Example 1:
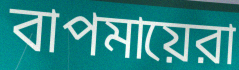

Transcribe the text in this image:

বাপমায়েরা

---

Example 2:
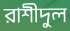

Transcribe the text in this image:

রাশীদুল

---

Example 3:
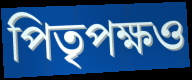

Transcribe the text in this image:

পিতৃপক্ষও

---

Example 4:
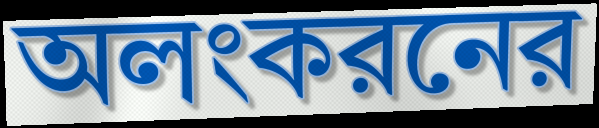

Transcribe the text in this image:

অলংকরনের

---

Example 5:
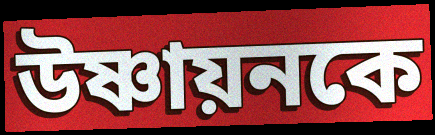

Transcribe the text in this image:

উষ্ণায়নকে